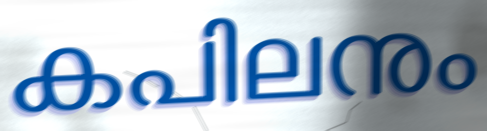
കപിലനും